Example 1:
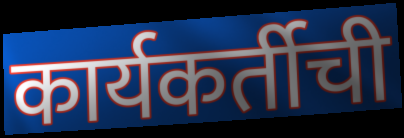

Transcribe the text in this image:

कार्यकर्तीची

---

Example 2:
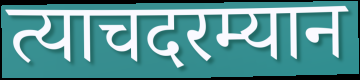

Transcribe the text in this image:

त्याचदरम्यान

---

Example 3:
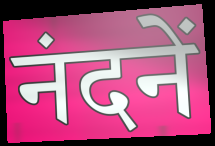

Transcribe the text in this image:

नंदनें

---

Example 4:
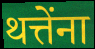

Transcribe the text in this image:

थत्तेंना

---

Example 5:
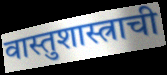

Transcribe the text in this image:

वास्तुशास्त्राची